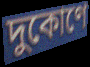
দুকোণে